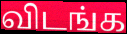
விடங்க